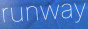
runway